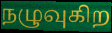
நழுவுகிற